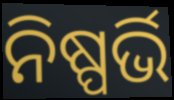
ନିଷ୍ପର୍ଭି